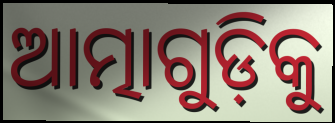
ଆତ୍ମାଗୁଡ଼ିକୁ